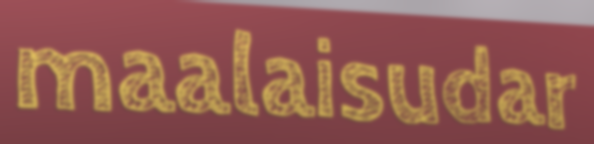
maalaisudar